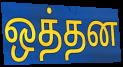
ஒத்தன